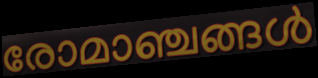
രോമാഞ്ചങ്ങൾ